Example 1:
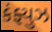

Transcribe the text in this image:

કંફ્યુઝ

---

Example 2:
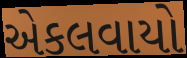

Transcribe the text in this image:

એકલવાયો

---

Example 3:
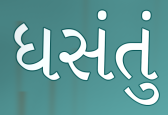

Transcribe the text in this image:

ધસંતું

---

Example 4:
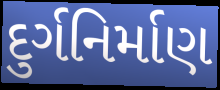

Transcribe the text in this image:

દુર્ગનિર્માણ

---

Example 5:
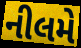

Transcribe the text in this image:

નીલમે